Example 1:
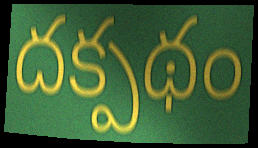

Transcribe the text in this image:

దక్పథం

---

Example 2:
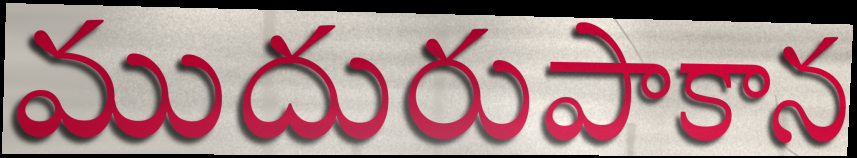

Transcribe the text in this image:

ముదురుపాకాన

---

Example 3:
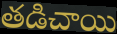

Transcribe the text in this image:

తడిచాయి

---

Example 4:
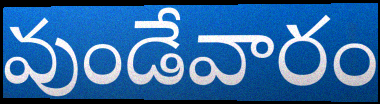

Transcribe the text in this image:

వుండేవారం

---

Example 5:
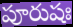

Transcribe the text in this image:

పూరుషః